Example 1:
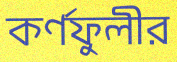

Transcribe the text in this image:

কর্ণফুলীর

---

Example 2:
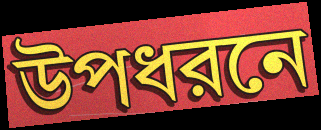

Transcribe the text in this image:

উপধরনে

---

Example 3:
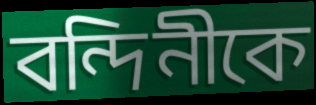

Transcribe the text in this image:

বন্দিনীকে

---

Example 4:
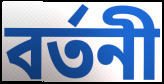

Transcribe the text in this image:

বর্তনী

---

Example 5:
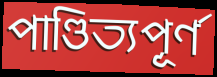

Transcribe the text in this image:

পাণ্ডিত্যপূর্ণ